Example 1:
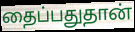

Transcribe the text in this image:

தைப்பதுதான்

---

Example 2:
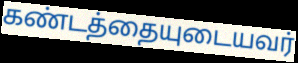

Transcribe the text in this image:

கண்டத்தையுடையவர்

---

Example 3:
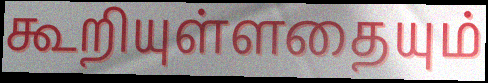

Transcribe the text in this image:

கூறியுள்ளதையும்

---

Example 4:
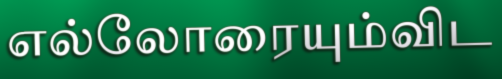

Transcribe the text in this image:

எல்லோரையும்விட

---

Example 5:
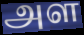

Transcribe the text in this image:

அள